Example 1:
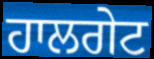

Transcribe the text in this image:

ਹਾਲਗੇਟ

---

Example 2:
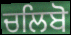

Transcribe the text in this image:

ਚਲਿਬੋ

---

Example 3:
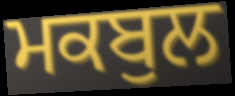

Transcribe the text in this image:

ਮਕਬੁਲ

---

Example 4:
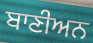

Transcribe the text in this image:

ਬਾਣੀਅਨ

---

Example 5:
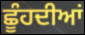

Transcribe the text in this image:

ਛੂੰਹਦੀਆਂ